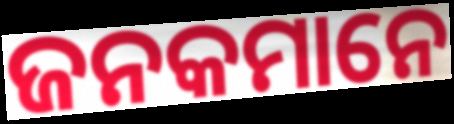
ଜନକମାନେ